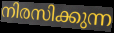
നിരസിക്കുന്ന